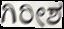
ಗಿರೀಶ